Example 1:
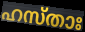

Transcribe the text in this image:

ഹസ്താഃ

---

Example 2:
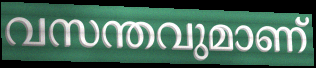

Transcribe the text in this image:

വസന്തവുമാണ്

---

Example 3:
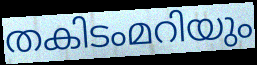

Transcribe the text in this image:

തകിടംമറിയും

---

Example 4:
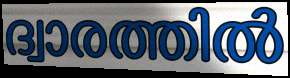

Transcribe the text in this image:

ദ്വാരത്തിൽ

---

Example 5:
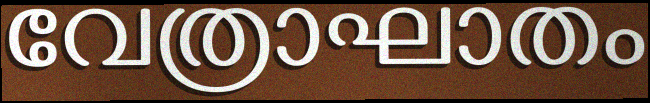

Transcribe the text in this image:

വേത്രാഘാതം